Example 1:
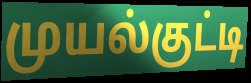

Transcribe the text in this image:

முயல்குட்டி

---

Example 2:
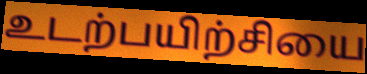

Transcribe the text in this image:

உடற்பயிற்சியை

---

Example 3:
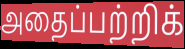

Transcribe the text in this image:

அதைப்பற்றிக்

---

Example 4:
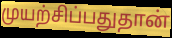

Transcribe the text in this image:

முயற்சிப்பதுதான்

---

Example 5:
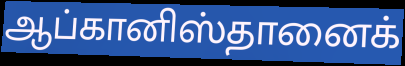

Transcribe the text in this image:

ஆப்கானிஸ்தானைக்